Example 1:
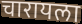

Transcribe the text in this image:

चारायला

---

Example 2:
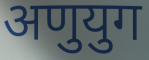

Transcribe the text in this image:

अणुयुग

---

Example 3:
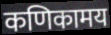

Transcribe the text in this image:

कणिकामय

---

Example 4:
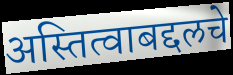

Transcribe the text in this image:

अस्तित्वाबद्दलचे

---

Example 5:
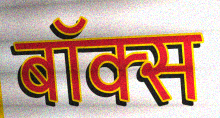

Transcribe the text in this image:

बॉक्‍स